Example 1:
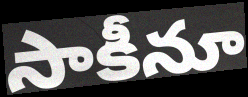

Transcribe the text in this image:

సాకీనూ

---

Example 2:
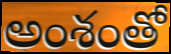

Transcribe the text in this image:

అంశంతో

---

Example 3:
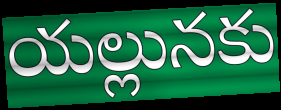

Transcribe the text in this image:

యల్లునకు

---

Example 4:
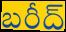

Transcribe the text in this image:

బరీద్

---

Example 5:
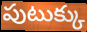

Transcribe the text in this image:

పుటుక్కు